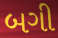
બગી